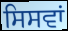
ਸਿਸਵਾਂ